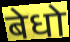
बेधो